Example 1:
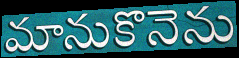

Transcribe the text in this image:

మానుకొనెను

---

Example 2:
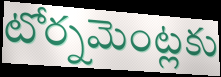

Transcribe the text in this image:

టోర్నమెంట్లకు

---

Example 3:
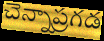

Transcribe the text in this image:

చెన్నాప్రగడ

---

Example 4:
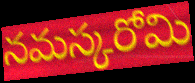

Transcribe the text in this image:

నమస్కరోమి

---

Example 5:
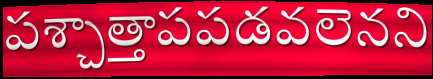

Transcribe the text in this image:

పశ్చాత్తాపపడవలెనని